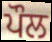
ਪੌਲ